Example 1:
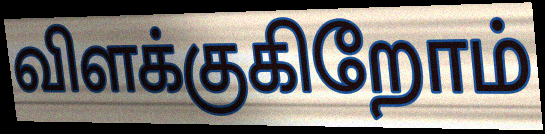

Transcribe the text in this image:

விளக்குகிறோம்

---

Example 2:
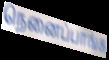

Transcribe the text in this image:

நெனைப்பாங்க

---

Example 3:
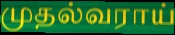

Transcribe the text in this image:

முதல்வராய்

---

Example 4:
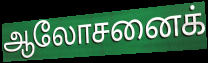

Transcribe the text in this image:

ஆலோசனைக்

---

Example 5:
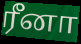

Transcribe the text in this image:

ரீனா